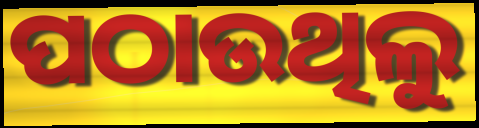
ପଠାଉଥିଲୁ